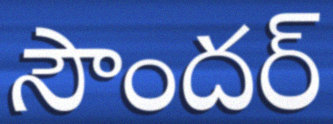
సౌందర్